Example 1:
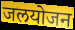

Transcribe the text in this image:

जलयोजन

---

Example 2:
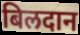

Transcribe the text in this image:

बिलदान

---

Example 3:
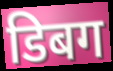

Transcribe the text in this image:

डिबग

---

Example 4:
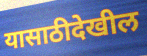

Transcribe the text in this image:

यासाठीदेखील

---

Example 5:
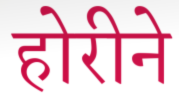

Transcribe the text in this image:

होरीने